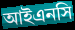
আইএনসি